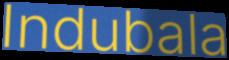
Indubala